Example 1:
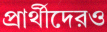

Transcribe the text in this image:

প্রার্থীদেরও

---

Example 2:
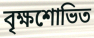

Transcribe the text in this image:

বৃক্ষশোভিত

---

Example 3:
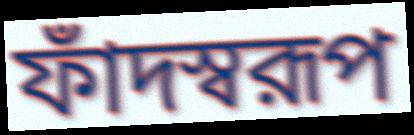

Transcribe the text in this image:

ফাঁদস্বরূপ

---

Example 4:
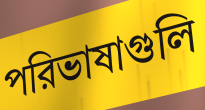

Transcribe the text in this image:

পরিভাষাগুলি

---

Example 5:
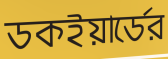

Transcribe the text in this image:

ডকইয়ার্ডের